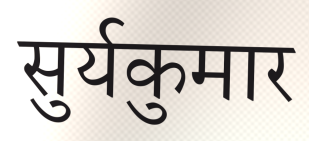
सुर्यकुमार